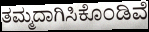
ತಮ್ಮದಾಗಿಸಿಕೊಂಡಿವೆ